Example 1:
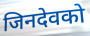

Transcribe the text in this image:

जिनदेवको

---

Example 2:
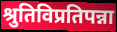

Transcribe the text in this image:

श्रुतिविप्रतिपन्ना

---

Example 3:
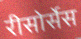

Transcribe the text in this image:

रीसोर्सेस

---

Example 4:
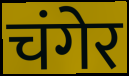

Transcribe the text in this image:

चंगेर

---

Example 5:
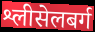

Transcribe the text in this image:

श्लीसेलबर्ग